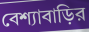
বেশ্যাবাড়ির